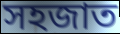
সহজাত